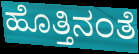
ಹೊತ್ತಿನಂತೆ